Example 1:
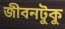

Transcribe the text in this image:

জীবনটুকু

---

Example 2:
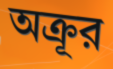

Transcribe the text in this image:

অক্রূর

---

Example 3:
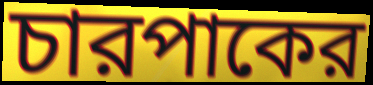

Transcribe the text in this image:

চারপাকের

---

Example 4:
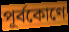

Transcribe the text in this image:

পূর্বকোণে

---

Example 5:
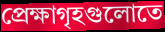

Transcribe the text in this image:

প্রেক্ষাগৃহগুলোতে